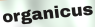
organicus